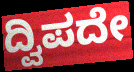
ದ್ವಿಪದೇ